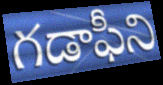
గడాఫీని